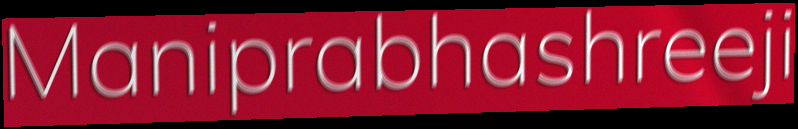
Maniprabhashreeji